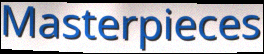
Masterpieces